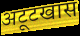
अटूटखास